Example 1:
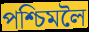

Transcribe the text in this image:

পশ্চিমলৈ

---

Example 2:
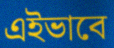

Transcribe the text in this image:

এইভাবে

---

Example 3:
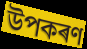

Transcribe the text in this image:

উপকৰণ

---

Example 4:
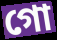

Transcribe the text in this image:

গো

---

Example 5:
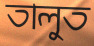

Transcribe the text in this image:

তালুত